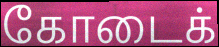
கோடைக்